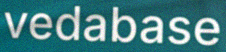
vedabase